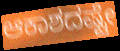
ಆಕಾಶದಷ್ಟೇ